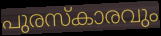
പുരസ്കാരവും